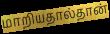
மாறியதால்தான்